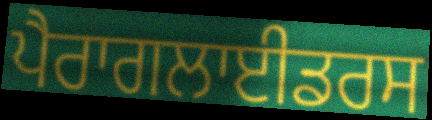
ਪੈਰਾਗਲਾਈਡਰਸ